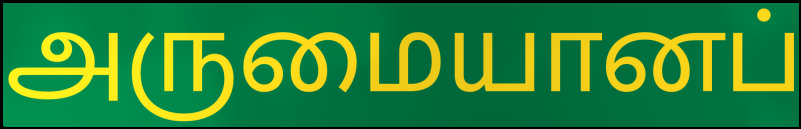
அருமையானப்